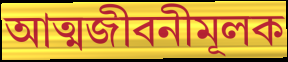
আত্মজীবনীমূলক